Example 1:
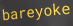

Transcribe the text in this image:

bareyoke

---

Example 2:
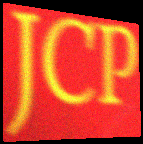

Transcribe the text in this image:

JCP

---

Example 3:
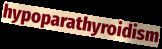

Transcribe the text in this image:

hypoparathyroidism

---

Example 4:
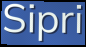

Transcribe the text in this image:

Sipri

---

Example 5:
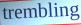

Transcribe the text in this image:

trembling